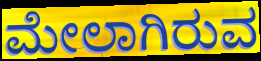
ಮೇಲಾಗಿರುವ